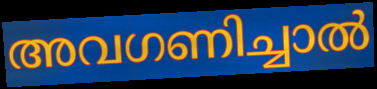
അവഗണിച്ചാൽ